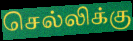
செல்லிக்கு